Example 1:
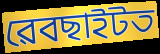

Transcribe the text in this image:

ৱেবছাইটত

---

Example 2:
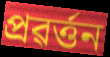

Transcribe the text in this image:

প্ৰৱৰ্ত্তন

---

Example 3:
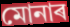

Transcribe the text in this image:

মোনাৰ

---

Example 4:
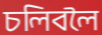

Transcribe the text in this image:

চলিবলৈ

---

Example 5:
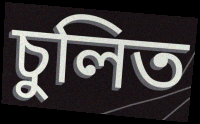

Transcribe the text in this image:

চুলিত